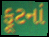
ફૂટનાં